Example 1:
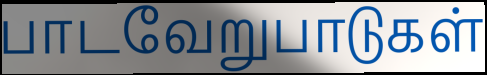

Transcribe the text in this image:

பாடவேறுபாடுகள்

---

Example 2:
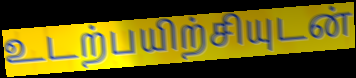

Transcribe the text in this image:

உடற்பயிற்சியுடன்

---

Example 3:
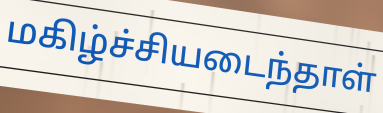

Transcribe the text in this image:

மகிழ்ச்சியடைந்தாள்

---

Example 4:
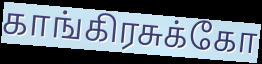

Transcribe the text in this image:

காங்கிரசுக்கோ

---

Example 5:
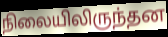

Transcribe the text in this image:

நிலையிலிருந்தன